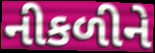
નીકળીને